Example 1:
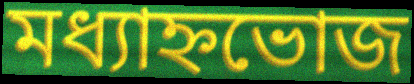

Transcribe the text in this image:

মধ্যাহ্নভোজ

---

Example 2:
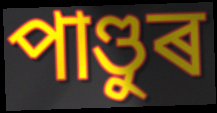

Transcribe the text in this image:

পাণ্ডুৰ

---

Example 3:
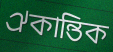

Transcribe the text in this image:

ঐকান্তিক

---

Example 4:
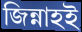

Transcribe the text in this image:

জিন্নাহই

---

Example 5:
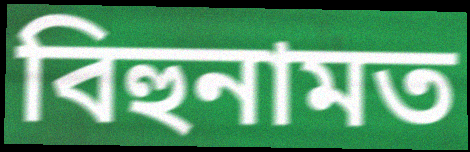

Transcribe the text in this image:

বিহুনামত